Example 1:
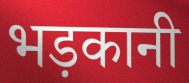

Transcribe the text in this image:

भड़कानी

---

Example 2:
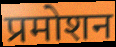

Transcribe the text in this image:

प्रमोशन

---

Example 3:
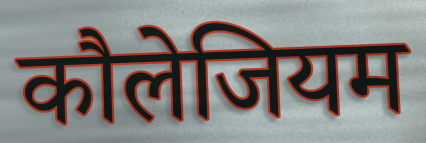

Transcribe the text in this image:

कौलेजियम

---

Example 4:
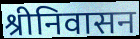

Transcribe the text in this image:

श्रीनिवासन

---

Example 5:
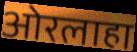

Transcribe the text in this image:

ओरलाहा